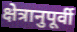
क्षेत्रानुपूर्वी